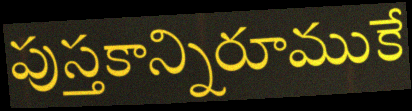
పుస్తకాన్నిరూముకే